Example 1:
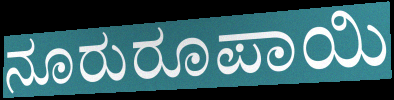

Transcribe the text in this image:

ನೂರುರೂಪಾಯಿ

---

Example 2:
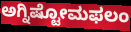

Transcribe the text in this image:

ಅಗ್ನಿಷ್ಟೋಮಫಲಂ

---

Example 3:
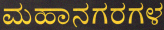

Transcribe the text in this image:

ಮಹಾನಗರಗಳ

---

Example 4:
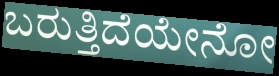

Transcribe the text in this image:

ಬರುತ್ತಿದೆಯೇನೋ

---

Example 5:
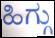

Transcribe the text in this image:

ಹಿಗ್ಗು